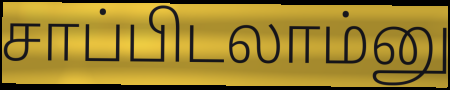
சாப்பிடலாம்னு